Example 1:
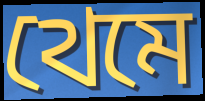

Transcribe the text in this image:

থেমে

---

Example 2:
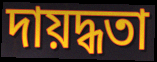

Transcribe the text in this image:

দায়দ্ধতা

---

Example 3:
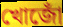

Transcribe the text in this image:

খোজোঁ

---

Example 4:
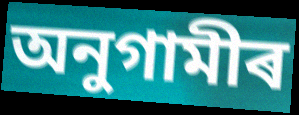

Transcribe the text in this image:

অনুগামীৰ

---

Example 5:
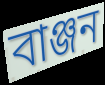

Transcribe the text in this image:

বাঞ্জন